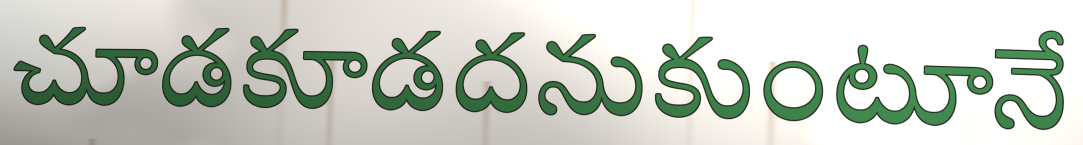
చూడకూడదనుకుంటూనే